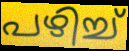
പഴിച്ച്